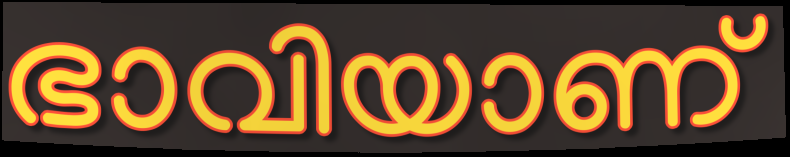
ഭാവിയാണ്